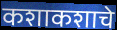
कशाकशाचे